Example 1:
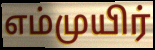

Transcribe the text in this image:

எம்முயிர்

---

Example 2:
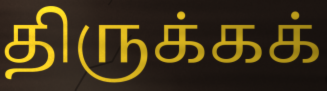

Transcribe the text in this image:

திருக்கக்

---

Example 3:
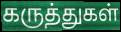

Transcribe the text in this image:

கருத்துகள்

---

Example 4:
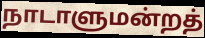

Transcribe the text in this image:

நாடாளுமன்றத்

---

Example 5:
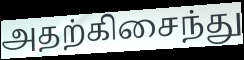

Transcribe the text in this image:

அதற்கிசைந்து